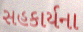
સહકાર્યના